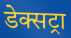
डेक्सट्रा